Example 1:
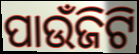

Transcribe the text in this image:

ପାଉଁଜିଟି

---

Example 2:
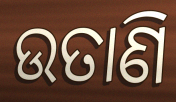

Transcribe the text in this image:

ଉତାଣି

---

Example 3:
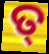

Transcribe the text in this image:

ତ୍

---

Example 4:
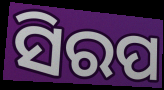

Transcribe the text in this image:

ସିରପ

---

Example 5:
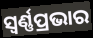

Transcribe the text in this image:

ସ୍ୱର୍ଣ୍ଣପ୍ରଭାର